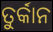
ତୁର୍କାନ